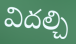
విదల్చి